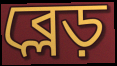
ব্লেড়